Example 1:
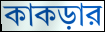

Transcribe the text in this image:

কাকড়ার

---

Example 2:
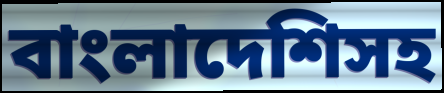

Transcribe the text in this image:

বাংলাদেশিসহ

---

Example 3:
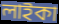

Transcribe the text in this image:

লাইকা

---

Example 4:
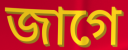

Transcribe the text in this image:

জাগে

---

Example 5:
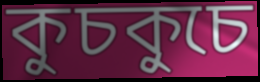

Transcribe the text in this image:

কুচকুচে